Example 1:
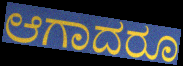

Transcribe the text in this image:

ಆಗಾದರೂ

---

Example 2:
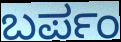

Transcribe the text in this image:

ಬರ್ಪಂ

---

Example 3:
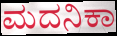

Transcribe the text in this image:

ಮದನಿಕಾ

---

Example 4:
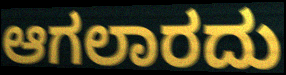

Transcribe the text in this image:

ಆಗಲಾರದು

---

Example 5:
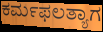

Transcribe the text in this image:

ಕರ್ಮಫಲತ್ಯಾಗ